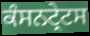
ਕੰਸਨਟ੍ਰੇਟਸ